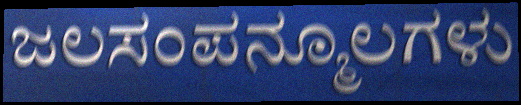
ಜಲಸಂಪನ್ಮೂಲಗಳು